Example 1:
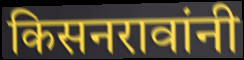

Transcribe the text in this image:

किसनरावांनी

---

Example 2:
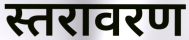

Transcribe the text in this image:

स्तरावरण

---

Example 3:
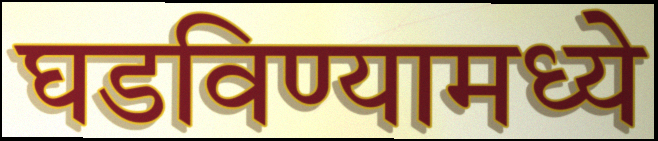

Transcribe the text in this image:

घडविण्यामध्ये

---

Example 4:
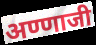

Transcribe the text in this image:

अण्णाजी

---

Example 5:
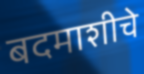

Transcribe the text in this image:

बदमाशीचे